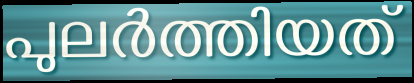
പുലർത്തിയത്